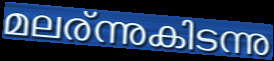
മലര്ന്നുകിടന്നു